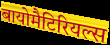
बायोमैटिरियल्स